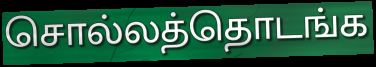
சொல்லத்தொடங்க